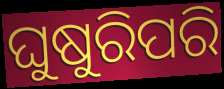
ଘୁଷୁରିପରି